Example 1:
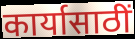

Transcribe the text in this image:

कार्यासाठीं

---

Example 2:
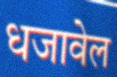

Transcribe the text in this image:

धजावेल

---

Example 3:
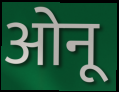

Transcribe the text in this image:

ओनू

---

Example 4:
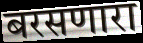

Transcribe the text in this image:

बरसणारा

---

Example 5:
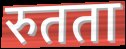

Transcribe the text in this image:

रुतता